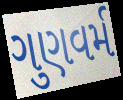
ગુણવર્મ